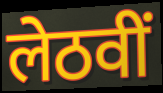
लेठवीं